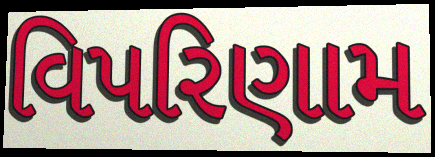
વિપરિણામ